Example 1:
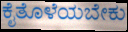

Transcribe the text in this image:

ಕೈತೊಳೆಯಬೇಕು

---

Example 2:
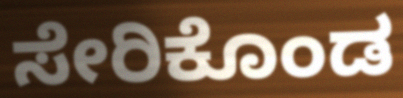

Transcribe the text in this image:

ಸೇರಿಕೊಂಡ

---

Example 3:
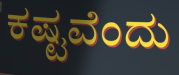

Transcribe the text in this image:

ಕಷ್ಟವೆಂದು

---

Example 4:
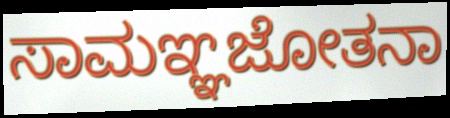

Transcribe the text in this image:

ಸಾಮಞ್ಞಜೋತನಾ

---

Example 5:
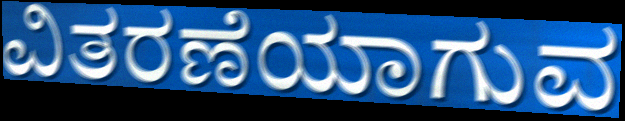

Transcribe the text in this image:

ವಿತರಣೆಯಾಗುವ